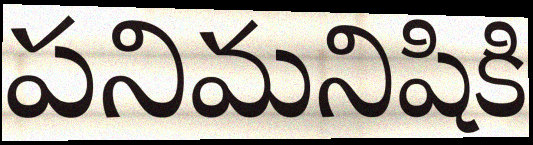
పనిమనిషికి